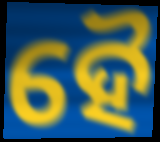
ହୈ